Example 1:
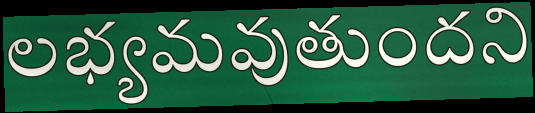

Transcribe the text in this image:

లభ్యమవుతుందని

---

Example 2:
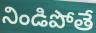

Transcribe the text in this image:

నిండిపోతే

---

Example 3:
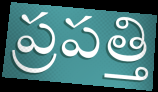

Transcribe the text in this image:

ప్రపత్తి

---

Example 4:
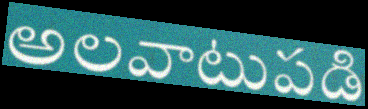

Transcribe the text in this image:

అలవాటుపడి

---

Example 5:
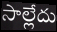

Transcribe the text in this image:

సాల్లేదు